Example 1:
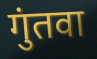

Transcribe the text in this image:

गुंतवा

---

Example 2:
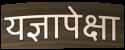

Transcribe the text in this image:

यज्ञापेक्षा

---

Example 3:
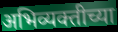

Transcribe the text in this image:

अभिव्यक्तीच्या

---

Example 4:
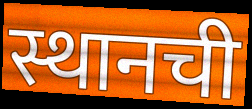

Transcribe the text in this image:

स्थानची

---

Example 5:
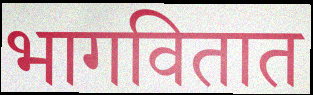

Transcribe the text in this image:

भागवितात